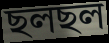
ছলছল